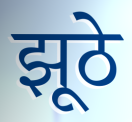
झूठे